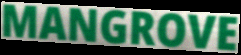
MANGROVE